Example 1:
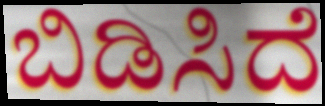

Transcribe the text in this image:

ಬಿಡಿಸಿದೆ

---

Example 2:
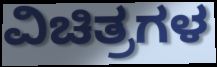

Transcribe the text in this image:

ವಿಚಿತ್ರಗಳ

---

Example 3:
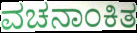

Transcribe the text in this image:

ವಚನಾಂಕಿತ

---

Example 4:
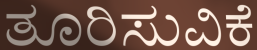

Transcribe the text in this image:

ತೂರಿಸುವಿಕೆ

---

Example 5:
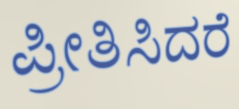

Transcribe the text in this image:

ಪ್ರೀತಿಸಿದರೆ